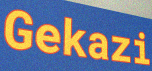
Gekazi